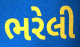
ભરેલી